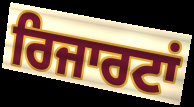
ਰਿਜਾਰਟਾਂ